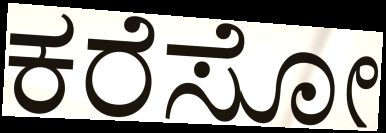
ಕರೆಸೋ